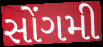
સોંગમી